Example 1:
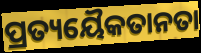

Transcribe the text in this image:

ପ୍ରତ୍ୟୟୈକତାନତା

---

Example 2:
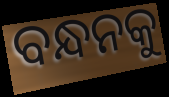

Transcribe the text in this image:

ବନ୍ଧନକୁ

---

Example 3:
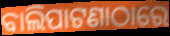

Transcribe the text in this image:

ବାଲିପାଟଣାଠାରେ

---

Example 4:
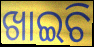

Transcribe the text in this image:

ଖାଇଚି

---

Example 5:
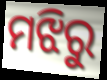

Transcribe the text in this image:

ମଝିରୁ